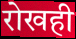
रोखही